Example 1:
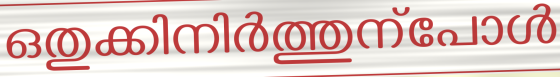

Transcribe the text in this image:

ഒതുക്കിനിർത്തുന്പോൾ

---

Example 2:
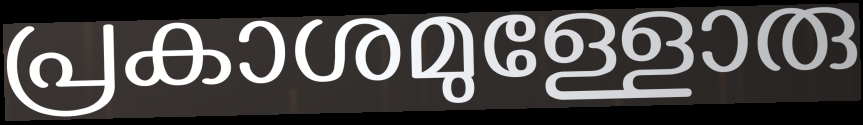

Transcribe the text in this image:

പ്രകാശമുള്ളോരു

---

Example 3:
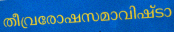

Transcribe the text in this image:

തീവ്രരോഷസമാവിഷ്ടാ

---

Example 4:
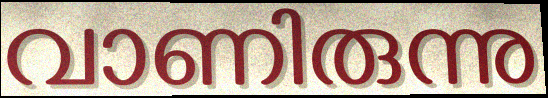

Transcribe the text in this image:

വാണിരുന്നു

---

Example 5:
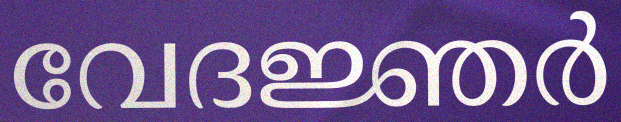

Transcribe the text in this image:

വേദജ്ഞർ